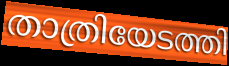
താത്രിയേടത്തി